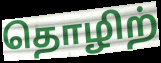
தொழிற்